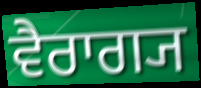
ਵੈਰਾਗ੍ਯ